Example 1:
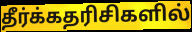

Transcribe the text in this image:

தீர்க்கதரிசிகளில்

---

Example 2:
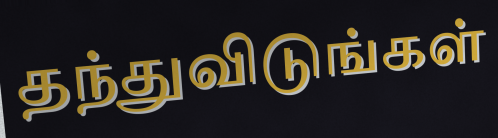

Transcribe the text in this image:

தந்துவிடுங்கள்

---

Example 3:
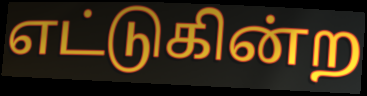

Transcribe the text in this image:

எட்டுகின்ற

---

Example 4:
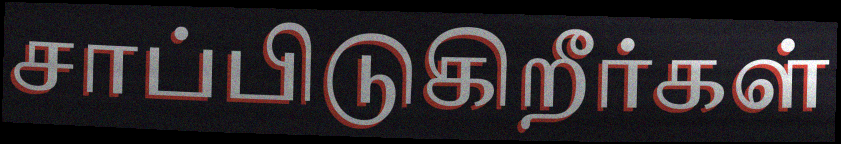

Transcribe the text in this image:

சாப்பிடுகிறீர்கள்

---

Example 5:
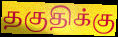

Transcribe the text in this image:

தகுதிக்கு